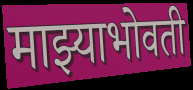
माझ्याभोवती